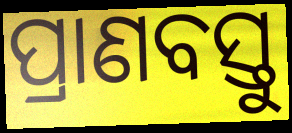
ପ୍ରାଣବସ୍ତୁ